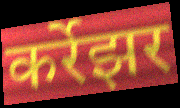
कर्रेझर